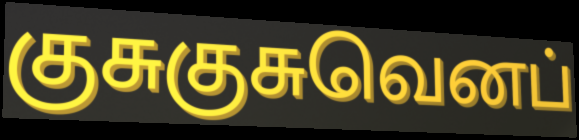
குசுகுசுவெனப்